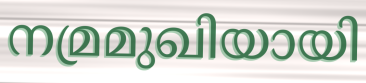
നമ്രമുഖിയായി